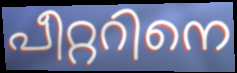
പീറ്ററിനെ